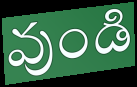
వుండి